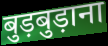
बुड़बुड़ाना